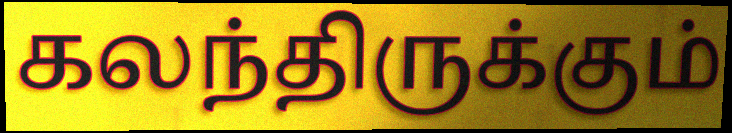
கலந்திருக்கும்